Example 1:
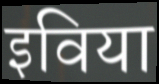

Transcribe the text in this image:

इविया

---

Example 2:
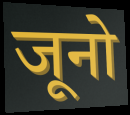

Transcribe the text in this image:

जूनो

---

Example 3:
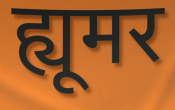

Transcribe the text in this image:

ह्यूमर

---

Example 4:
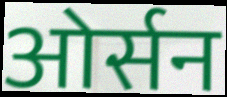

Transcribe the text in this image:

ओर्सन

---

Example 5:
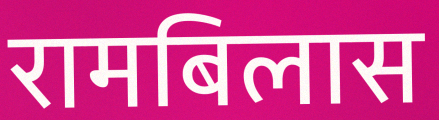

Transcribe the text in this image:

रामबिलास